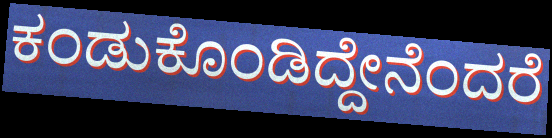
ಕಂಡುಕೊಂಡಿದ್ದೇನೆಂದರೆ